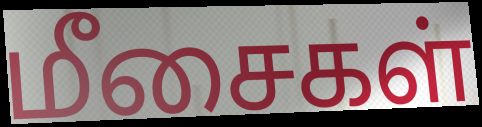
மீசைகள்